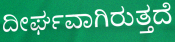
ದೀರ್ಘವಾಗಿರುತ್ತದೆ